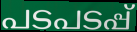
പടപടപ്പ്